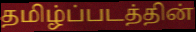
தமிழ்ப்படத்தின்